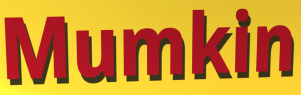
Mumkin